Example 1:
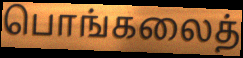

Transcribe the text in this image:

பொங்கலைத்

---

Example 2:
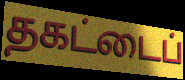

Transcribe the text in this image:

தகட்டைப்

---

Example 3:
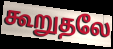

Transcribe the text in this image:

கூறுதலே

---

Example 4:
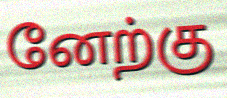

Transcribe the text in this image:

னேற்கு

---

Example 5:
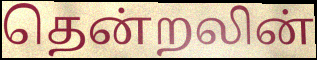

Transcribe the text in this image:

தென்றலின்